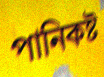
পানিকষ্ট